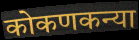
कोकणकन्या